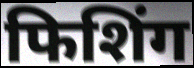
फिशिंग